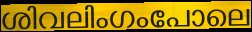
ശിവലിംഗംപോലെ